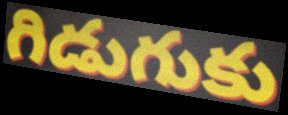
గిడుగుకు